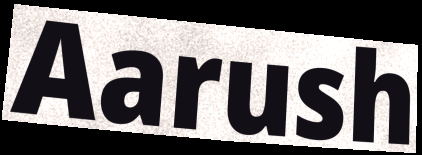
Aarush